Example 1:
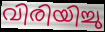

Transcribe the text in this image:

വിരിയിച്ചു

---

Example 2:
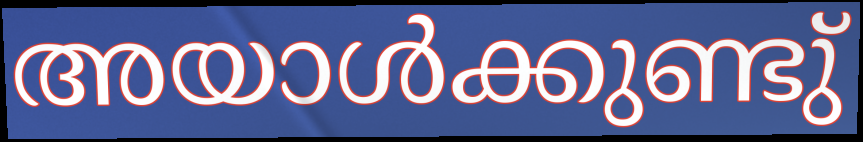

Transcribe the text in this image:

അയാൾക്കുണ്ടു്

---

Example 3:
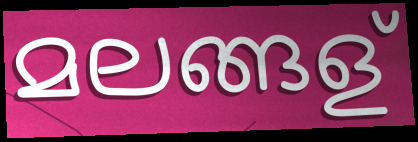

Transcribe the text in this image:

മലങ്ങള്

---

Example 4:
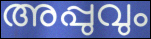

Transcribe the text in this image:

അപ്പുവും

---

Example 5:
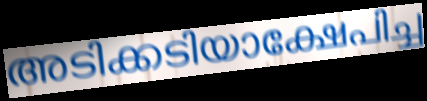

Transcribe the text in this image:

അടിക്കടിയാക്ഷേപിച്ച